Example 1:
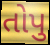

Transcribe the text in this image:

તોપુ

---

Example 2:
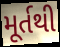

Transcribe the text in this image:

મૂર્તથી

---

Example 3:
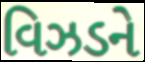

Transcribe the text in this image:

વિઝડને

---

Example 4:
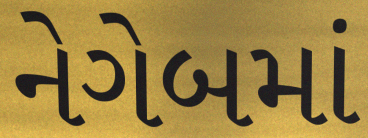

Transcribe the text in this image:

નેગેબમાં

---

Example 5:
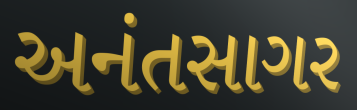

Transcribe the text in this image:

અનંતસાગર